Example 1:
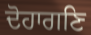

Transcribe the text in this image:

ਦੋਹਾਗਣਿ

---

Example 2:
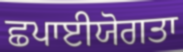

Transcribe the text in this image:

ਛਪਾਈਯੋਗਤਾ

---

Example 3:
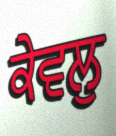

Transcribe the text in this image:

ਕੇਵਲੁ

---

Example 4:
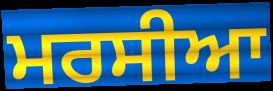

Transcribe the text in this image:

ਮਰਸੀਆ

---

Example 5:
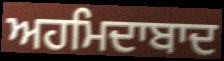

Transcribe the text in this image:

ਅਹਮਿਦਾਬਾਦ